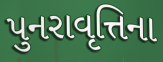
પુનરાવૃત્તિના